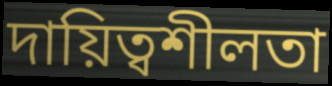
দায়িত্বশীলতা